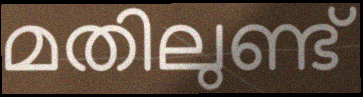
മതിലുണ്ട്